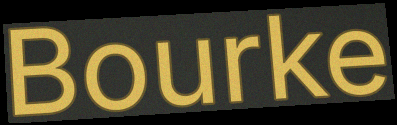
Bourke